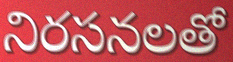
నిరసనలతో